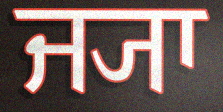
ਜ੍ਯਾ